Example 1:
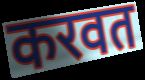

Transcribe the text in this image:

करवत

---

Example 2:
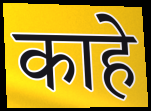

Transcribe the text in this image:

काहे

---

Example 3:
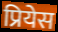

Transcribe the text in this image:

प्रियेस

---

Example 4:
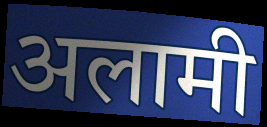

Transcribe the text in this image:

अलामी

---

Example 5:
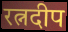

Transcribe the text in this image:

रत्नदीप